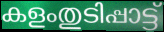
കളംതുടിപ്പാട്ട്